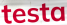
testa